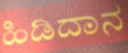
ಹಿಡಿದಾನ